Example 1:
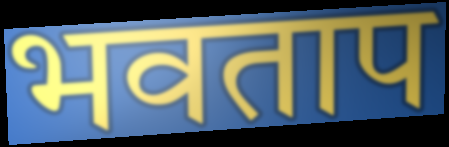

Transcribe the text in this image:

भवताप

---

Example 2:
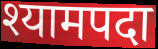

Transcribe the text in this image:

श्यामपदा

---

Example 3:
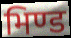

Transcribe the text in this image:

भिण्ड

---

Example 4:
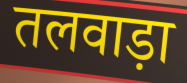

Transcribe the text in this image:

तलवाड़ा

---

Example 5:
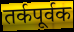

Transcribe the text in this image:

तर्कपूर्वक